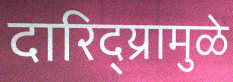
दारिद्य्रामुळे